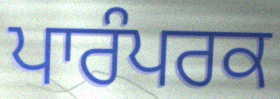
ਪਾਰੰਪਰਕ